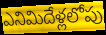
ఎనిమిదేళ్లలోపు